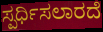
ಸ್ಪರ್ಧಿಸಲಾರದೆ